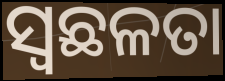
ସ୍ଵଛଳତା